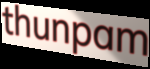
thunpam